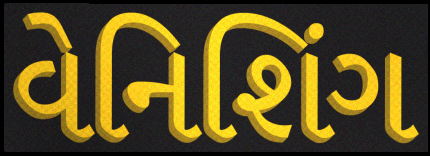
વેનિશિંગ